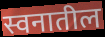
स्वनातील